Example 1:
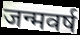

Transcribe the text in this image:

जन्मवर्ष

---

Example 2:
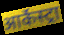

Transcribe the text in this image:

आर्केस्ट्रा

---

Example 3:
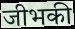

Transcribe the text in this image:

जीभकी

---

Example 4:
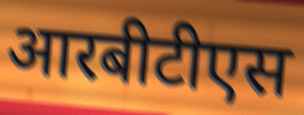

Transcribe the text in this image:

आरबीटीएस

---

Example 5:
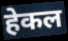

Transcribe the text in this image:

हेकल